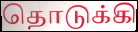
தொடுக்கி